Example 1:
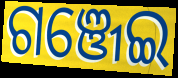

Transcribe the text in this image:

ଗଞ୍ଜେଇ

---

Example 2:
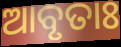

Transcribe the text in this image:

ଆବୃତାଃ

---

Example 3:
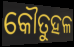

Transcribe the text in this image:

କୌତୁହଳ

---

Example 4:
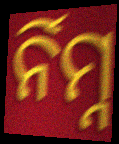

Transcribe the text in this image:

ର୍ନିମ୍ନ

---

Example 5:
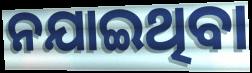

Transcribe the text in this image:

ନଯାଇଥିବା